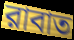
রাবাত